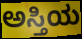
ಅಸ್ತಿಯ